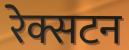
रेक्सटन